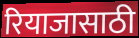
रियाजासाठी